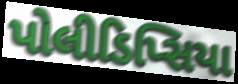
પોલીડિપ્સિયા